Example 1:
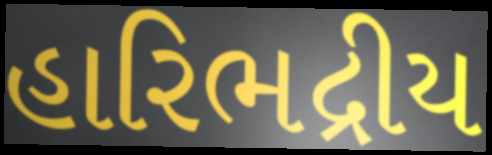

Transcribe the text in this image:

હારિભદ્રીય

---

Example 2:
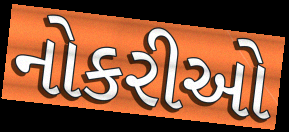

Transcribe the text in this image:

નોકરીઓ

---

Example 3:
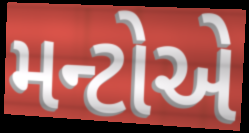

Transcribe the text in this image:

મન્ટોએ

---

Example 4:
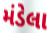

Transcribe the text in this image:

મંડેલા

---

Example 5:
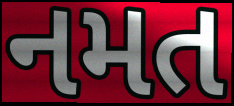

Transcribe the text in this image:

નમત